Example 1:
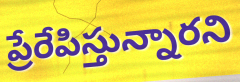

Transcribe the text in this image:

ప్రేరేపిస్తున్నారని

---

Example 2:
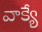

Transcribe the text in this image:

వాక్యే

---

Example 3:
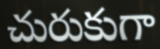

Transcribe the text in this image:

చురుకుగా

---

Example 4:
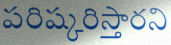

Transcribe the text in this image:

పరిష్కరిస్తారని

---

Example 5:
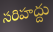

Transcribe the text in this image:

సరిహద్దు